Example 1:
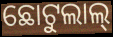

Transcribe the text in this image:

ଛୋଟୁଲାଲ୍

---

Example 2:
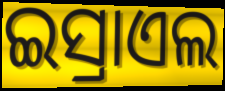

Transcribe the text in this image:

ଇସ୍ରାଏଲ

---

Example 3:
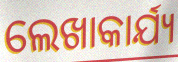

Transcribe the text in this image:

ଲେଖାକାର୍ଯ୍ୟ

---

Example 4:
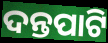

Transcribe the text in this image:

ଦନ୍ତପାଟି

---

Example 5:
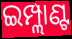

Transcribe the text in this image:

ଇମ୍ପ୍ଲାଣ୍ଟ